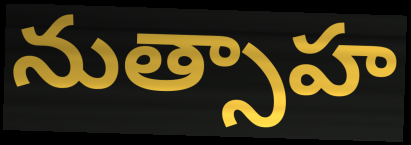
నుత్సాహ